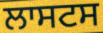
ਲਾਸਟਸ